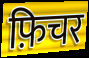
फ़िचर